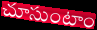
చూసుంటాం